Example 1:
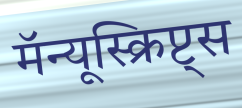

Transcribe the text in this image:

मॅन्यूस्क्रिप्ट्स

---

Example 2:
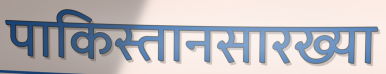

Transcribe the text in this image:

पाकिस्तानसारख्या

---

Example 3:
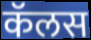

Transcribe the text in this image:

कॅलस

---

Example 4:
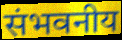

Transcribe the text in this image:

संभवनीय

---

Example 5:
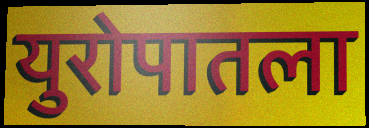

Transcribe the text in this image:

युरोपातला